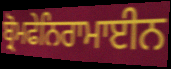
ਬ੍ਰੋਮਫੇਨਿਰਾਮਾਈਨ